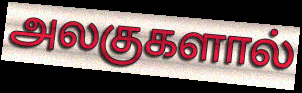
அலகுகளால்